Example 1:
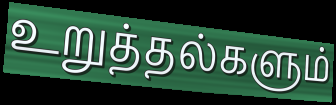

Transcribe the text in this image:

உறுத்தல்களும்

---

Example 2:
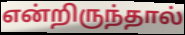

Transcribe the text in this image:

என்றிருந்தால்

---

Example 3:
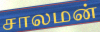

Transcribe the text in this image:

சாலமன்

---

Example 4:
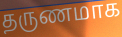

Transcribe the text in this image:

தருணமாக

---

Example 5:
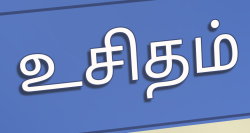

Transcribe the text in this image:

உசிதம்